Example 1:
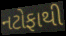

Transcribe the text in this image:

નટોફાથી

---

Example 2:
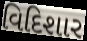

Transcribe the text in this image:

વિદિશાર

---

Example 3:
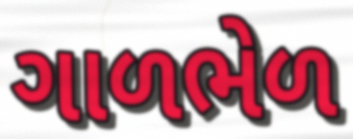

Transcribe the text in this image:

ગાળભેળ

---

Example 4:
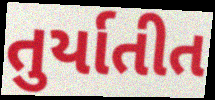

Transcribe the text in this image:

તુર્યાતીત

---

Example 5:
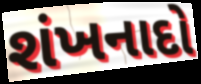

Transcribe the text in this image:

શંખનાદો